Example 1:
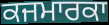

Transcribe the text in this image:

ਕਜਮਾਰਕਾ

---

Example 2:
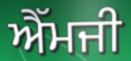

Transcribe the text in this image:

ਐੱਮਜੀ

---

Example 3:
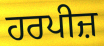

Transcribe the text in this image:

ਹਰਪੀਜ਼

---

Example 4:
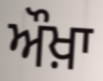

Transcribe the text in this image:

ਔਖ਼ਾ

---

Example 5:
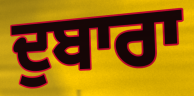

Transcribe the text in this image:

ਦੁਬਾਰਾ